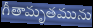
గీతామృతమును